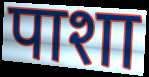
पाशा